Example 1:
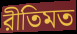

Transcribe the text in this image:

রীতিমত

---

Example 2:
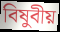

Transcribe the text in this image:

বিষুবীয়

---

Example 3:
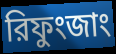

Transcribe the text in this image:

রিফুংজাং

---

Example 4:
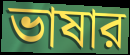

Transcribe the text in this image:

ভাষার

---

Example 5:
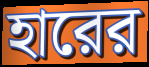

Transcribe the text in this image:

হারের